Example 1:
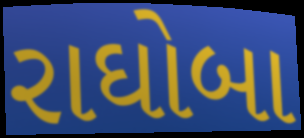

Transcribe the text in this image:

રાઘોબા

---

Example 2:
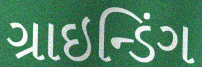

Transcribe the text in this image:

ગ્રાઇન્ડિંગ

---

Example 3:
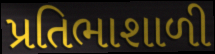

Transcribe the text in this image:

પ્રતિભાશાળી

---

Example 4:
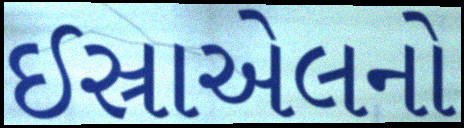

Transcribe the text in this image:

ઈસ્રાએલનો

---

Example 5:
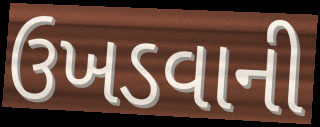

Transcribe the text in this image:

ઉખડવાની